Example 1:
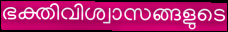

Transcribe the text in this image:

ഭക്തിവിശ്വാസങ്ങളുടെ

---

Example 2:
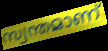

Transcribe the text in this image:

സ്വന്തമാണ്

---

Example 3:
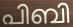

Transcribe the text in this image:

പിബി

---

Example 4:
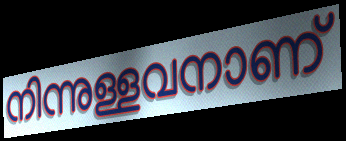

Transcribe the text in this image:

നിന്നുള്ളവനാണ്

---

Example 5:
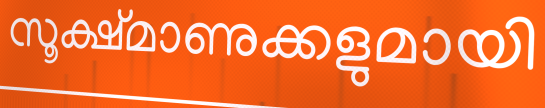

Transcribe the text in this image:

സൂക്ഷ്മാണുക്കളുമായി